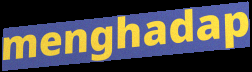
menghadap